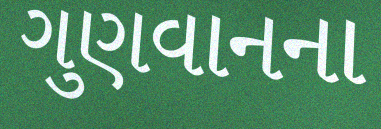
ગુણવાનના